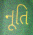
નૂતિ